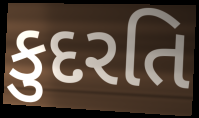
કુદરતિ